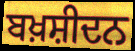
ਬਖ਼ਸ਼ੀਦਨ